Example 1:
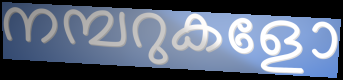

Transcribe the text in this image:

നമ്പറുകളോ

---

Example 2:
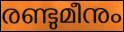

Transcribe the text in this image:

രണ്ടുമീനും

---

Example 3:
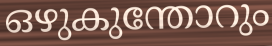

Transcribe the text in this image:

ഒഴുകുന്തോറും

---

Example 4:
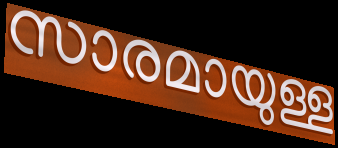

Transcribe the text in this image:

സാരമായുള്ള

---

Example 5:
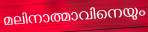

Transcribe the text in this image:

മലിനാത്മാവിനെയും